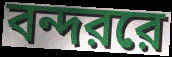
বন্দররে